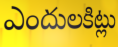
ఎందులకిట్లు